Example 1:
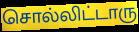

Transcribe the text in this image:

சொல்லிட்டாரு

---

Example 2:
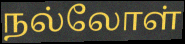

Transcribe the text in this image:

நல்லோள்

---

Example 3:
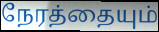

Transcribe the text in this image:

நேரத்தையும்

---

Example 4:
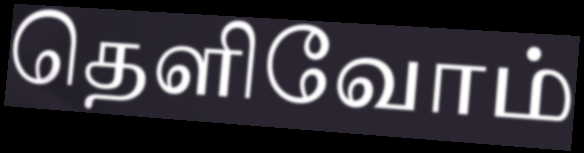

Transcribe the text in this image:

தெளிவோம்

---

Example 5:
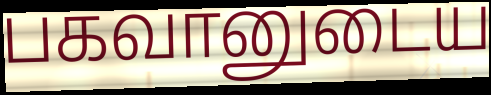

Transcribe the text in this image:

பகவானுடைய